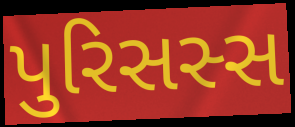
પુરિસસ્સ